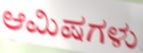
ಆಮಿಷಗಳು